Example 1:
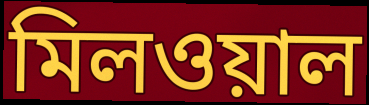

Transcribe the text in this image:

মিলওয়াল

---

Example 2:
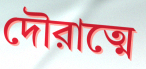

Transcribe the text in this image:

দৌরাত্মে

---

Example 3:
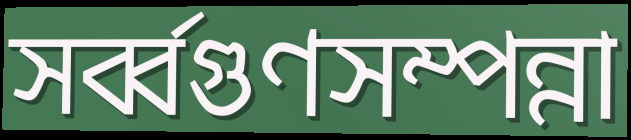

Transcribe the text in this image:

সর্ব্বগুণসম্পন্না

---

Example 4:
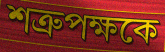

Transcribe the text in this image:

শত্রুপক্ষকে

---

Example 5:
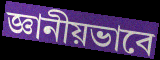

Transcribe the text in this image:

জ্ঞানীয়ভাবে